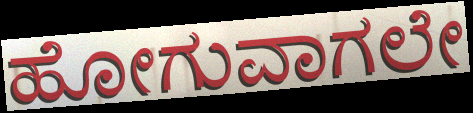
ಹೋಗುವಾಗಲೇ